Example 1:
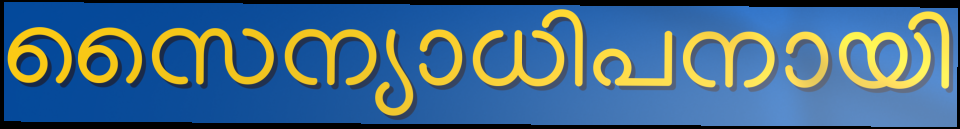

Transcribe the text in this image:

സൈന്യാധിപനായി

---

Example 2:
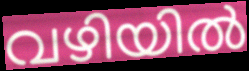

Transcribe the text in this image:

വഴിയിൽ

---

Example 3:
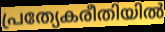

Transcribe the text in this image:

പ്രത്യേകരീതിയിൽ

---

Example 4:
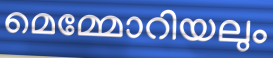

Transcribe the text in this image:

മെമ്മോറിയലും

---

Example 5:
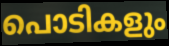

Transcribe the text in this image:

പൊടികളും